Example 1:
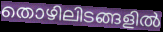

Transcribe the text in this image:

തൊഴിലിടങ്ങളിൽ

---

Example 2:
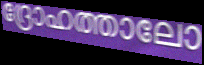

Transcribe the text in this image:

ദ്രോഹത്താലോ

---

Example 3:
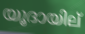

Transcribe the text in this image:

യൂദായില്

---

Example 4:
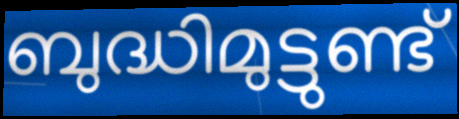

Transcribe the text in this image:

ബുദ്ധിമുട്ടുണ്ട്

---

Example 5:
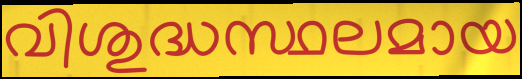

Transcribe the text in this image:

വിശുദ്ധസ്ഥലമായ